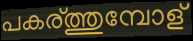
പകര്ത്തുമ്പോള്